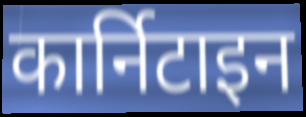
कार्निटाइन